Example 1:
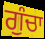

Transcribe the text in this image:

ਗੁੰਚਾ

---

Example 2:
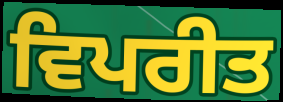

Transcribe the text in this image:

ਵਿਪਰੀਤ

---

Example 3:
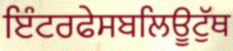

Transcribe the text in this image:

ਇੰਟਰਫੇਸਬਲਿਊਟੁੱਥ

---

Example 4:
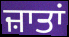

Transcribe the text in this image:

ਜ਼ਾਤਾਂ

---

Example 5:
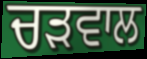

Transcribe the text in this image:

ਚੜਵਾਲ